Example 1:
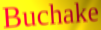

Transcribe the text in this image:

Buchake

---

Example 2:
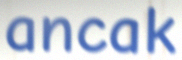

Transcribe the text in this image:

ancak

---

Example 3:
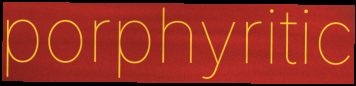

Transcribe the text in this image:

porphyritic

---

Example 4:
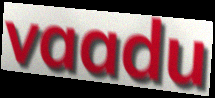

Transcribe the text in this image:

vaadu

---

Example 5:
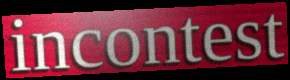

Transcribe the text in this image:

incontest